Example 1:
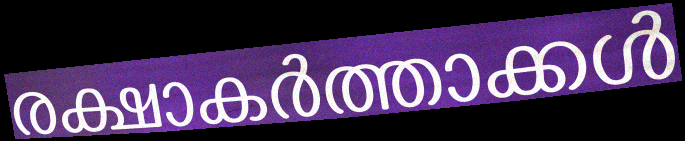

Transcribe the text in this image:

രക്ഷാകർത്താക്കൾ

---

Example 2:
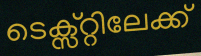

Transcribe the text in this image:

ടെക്സ്റ്റിലേക്ക്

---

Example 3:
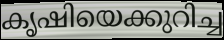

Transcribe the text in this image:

കൃഷിയെക്കുറിച്ച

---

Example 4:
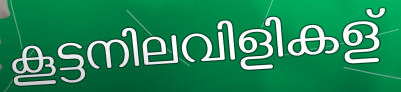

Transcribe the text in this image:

കൂട്ടനിലവിളികള്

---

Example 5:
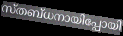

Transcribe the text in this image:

സ്തബ്ധനായിപ്പോയി